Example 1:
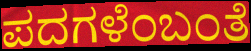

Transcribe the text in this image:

ಪದಗಳೆಂಬಂತೆ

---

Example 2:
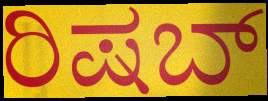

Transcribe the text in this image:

ರಿಷಬ್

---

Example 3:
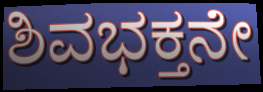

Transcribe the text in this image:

ಶಿವಭಕ್ತನೇ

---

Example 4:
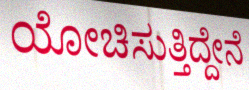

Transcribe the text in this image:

ಯೋಚಿಸುತ್ತಿದ್ದೇನೆ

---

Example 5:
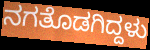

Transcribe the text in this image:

ನಗತೊಡಗಿದ್ದಳು